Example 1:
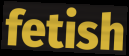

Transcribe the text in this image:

fetish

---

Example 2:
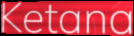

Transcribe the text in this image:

Ketana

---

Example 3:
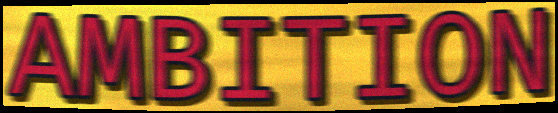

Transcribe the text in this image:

AMBITION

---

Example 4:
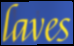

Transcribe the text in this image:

laves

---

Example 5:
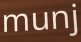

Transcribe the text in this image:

munj